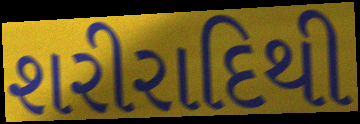
શરીરાદિથી